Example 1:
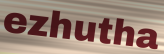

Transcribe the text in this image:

ezhutha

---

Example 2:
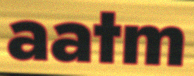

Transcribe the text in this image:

aatm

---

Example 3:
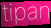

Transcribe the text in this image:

tipan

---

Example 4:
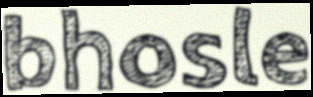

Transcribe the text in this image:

bhosle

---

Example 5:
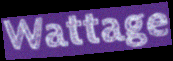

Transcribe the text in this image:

Wattage